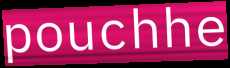
pouchhe